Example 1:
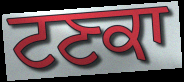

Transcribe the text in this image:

ਟਣਕਾ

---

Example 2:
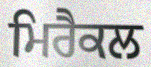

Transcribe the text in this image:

ਮਿਰੈਕਲ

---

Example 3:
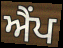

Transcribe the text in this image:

ਐਂਪ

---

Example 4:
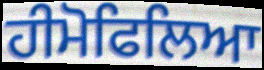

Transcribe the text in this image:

ਹੀਮੋਫਿਲਿਆ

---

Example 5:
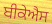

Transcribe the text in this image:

ਬੀਕੇਐਸ